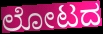
ಲೋಟದ